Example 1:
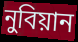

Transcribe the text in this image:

নুবিয়ান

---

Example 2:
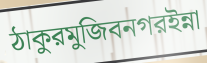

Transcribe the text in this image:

ঠাকুরমুজিবনগরইন্না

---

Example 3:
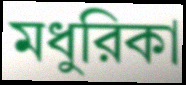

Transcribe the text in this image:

মধুরিকা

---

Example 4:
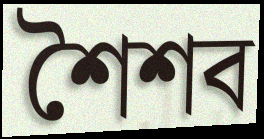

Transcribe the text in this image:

শৈশব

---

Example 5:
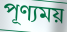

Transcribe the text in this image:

পূণ্যময়